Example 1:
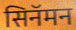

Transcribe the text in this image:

सिनॅमन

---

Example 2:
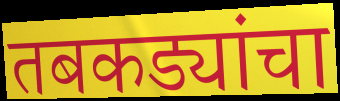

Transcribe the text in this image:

तबकड्यांचा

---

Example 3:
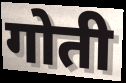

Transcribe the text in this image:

गोती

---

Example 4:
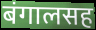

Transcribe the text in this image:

बंगालसह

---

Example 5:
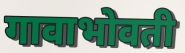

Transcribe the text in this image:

गावाभोवती